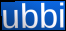
ubbi